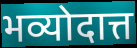
भव्योदात्त